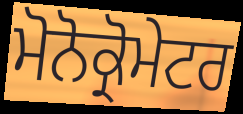
ਮੋਨੋਕ੍ਰੋਮੇਟਰ